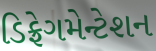
ડિફ્રેગમેન્ટેશન